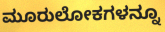
ಮೂರುಲೋಕಗಳನ್ನೂ